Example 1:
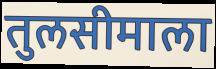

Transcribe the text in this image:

तुलसीमाला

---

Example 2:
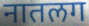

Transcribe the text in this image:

नातलग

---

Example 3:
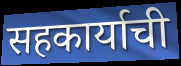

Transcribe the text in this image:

सहकार्याची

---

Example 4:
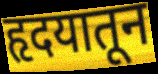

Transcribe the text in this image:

हृदयातून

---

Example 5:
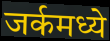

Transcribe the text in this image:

जर्कमध्ये